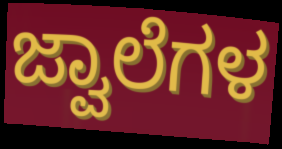
ಜ್ವಾಲೆಗಳ